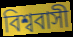
বিশ্ববাসী